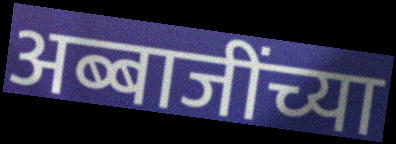
अब्बाजींच्या